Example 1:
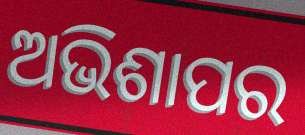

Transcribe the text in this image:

ଅଭିଶାପର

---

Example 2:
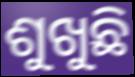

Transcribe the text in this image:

ଶୁଖୁଛି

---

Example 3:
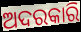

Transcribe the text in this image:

ଅଦରକାରି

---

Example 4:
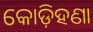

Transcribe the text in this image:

କୋଡ଼ିହଣା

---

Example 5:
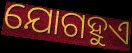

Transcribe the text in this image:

ଯୋଗହୁଏ